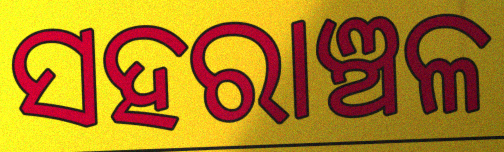
ସହରାଞ୍ଚଳ